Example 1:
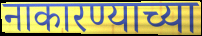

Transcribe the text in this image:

नाकारण्याच्या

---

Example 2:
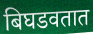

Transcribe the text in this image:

बिघडवतात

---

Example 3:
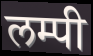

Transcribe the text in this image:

लम्पी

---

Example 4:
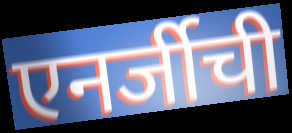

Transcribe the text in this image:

एनर्जीची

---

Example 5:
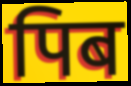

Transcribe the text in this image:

पिब